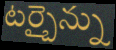
టర్బైన్ను